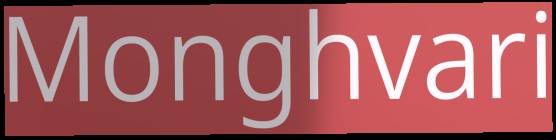
Monghvari